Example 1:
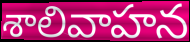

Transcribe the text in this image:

శాలివాహన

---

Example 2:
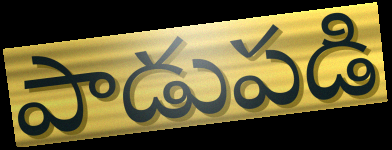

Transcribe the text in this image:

పాడుపడి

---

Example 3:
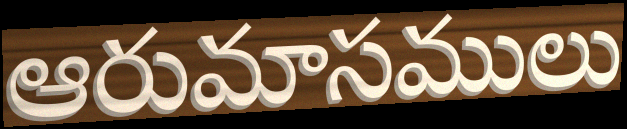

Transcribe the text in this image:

ఆరుమాసములు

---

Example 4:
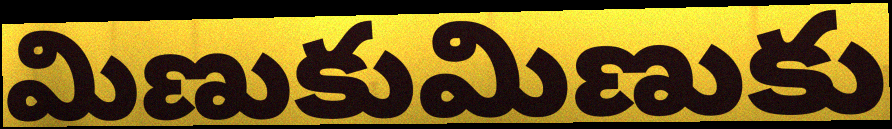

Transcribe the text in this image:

మిణుకుమిణుకు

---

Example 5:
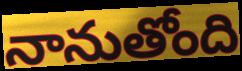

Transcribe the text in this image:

నానుతోంది